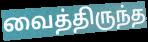
வைத்திருந்த